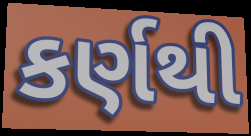
કર્ણથી